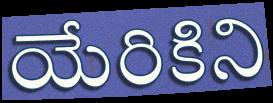
యేరికిని